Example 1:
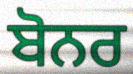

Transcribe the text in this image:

ਬੋਨਰ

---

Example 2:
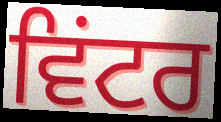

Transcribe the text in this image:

ਵਿਂਟਰ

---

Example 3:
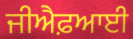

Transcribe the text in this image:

ਜੀਐਫ਼ਆਈ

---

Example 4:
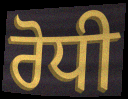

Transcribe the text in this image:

ਰੋਧੀ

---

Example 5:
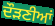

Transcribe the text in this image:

ਦੌੜਣੀਆਂ